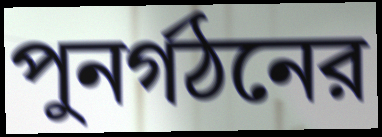
পুনর্গঠনের